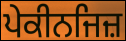
ਪੇਕੀਨਜਿਜ਼